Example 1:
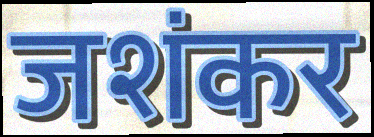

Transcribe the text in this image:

जशंकर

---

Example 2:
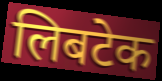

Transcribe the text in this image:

लिबटेक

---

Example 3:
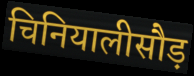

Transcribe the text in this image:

चिनियालीसौड़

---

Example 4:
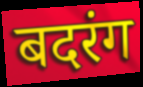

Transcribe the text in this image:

बदरंग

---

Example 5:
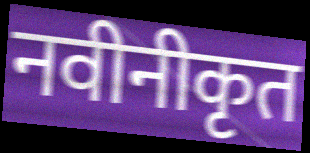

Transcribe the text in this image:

नवीनीकृत